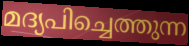
മദ്യപിച്ചെത്തുന്ന